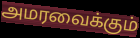
அமரவைக்கும்